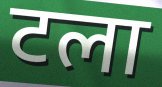
टला